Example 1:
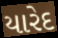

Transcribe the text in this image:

યારેદ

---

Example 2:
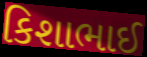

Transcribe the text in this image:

કિશાભાઈ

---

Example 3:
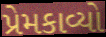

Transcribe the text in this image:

પ્રેમકાવ્યો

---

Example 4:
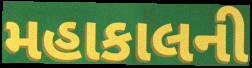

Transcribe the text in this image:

મહાકાલની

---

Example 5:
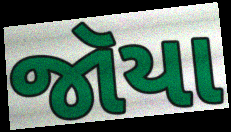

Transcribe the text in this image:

જૉયા